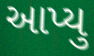
આપ્યુ